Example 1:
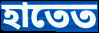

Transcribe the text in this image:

হাতেত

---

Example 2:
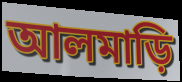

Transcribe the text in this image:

আলমাড়ি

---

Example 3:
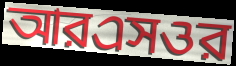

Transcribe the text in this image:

আরএসওর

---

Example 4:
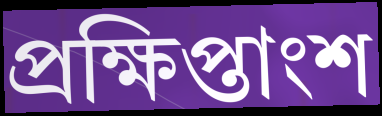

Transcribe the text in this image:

প্রক্ষিপ্তাংশ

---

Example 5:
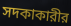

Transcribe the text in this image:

সদকাকারীর